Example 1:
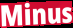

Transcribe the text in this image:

Minus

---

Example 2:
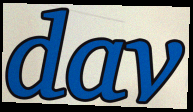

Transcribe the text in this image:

dav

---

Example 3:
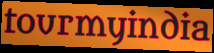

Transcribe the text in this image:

tourmyindia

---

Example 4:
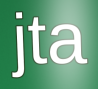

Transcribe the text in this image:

jta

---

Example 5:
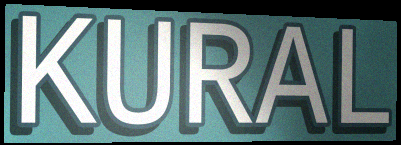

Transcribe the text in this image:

KURAL